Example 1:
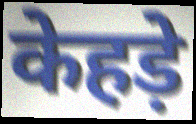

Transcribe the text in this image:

केहड़े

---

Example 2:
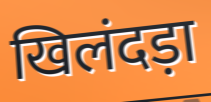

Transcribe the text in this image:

खिलंदड़ा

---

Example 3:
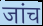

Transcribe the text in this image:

जांच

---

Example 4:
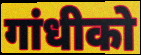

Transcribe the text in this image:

गांधीको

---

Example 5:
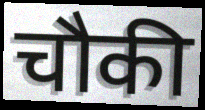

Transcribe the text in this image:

चौकी